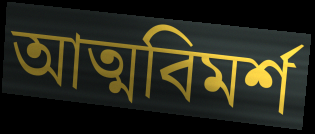
আত্মবিমর্শ